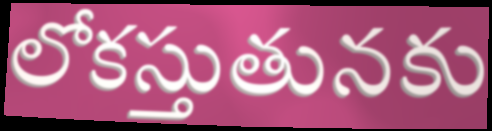
లోకస్తుతునకు